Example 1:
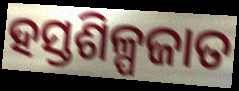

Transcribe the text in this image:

ହସ୍ତଶିଳ୍ପଜାତ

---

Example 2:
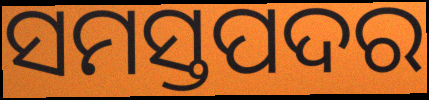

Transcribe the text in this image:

ସମସ୍ତପଦର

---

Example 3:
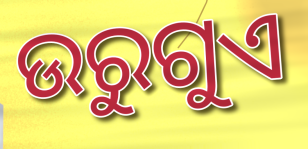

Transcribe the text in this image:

ଉରୁଗୁଏ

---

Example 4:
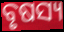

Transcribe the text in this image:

ବୃଷସ୍ୟ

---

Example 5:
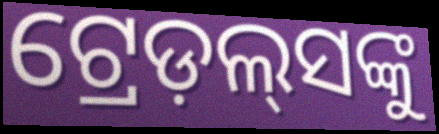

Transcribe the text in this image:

ଟ୍ରେଡ଼ଲ୍‍ସଙ୍କୁ